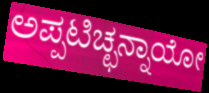
ಅಪ್ಪಟಿಚ್ಛನ್ನಾಯೋ